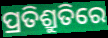
ପ୍ରତିଶ୍ରୁତିରେ